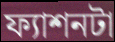
ফ্যাশনটা